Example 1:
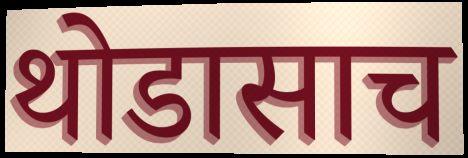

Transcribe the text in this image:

थोडासाच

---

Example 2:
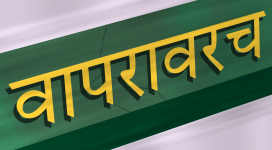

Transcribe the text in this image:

वापरावरच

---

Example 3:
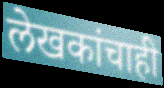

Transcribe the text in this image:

लेखकांचाही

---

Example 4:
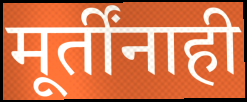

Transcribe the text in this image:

मूर्तींनाही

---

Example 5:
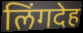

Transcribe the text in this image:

लिंगदेह